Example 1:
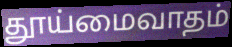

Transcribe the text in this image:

தூய்மைவாதம்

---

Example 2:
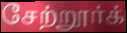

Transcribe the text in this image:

சேற்றூர்க்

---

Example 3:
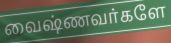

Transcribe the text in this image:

வைஷ்ணவர்களே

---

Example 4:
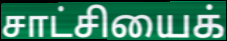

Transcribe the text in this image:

சாட்சியைக்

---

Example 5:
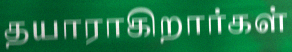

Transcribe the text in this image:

தயாராகிறார்கள்